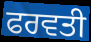
ਫਰਵਤੀ